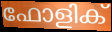
ഫോളിക്